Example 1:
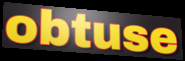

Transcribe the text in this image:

obtuse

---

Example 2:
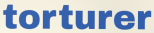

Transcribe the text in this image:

torturer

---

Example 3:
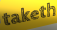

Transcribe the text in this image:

taketh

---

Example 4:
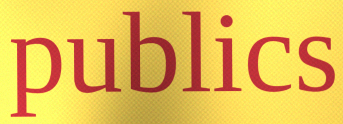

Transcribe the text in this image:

publics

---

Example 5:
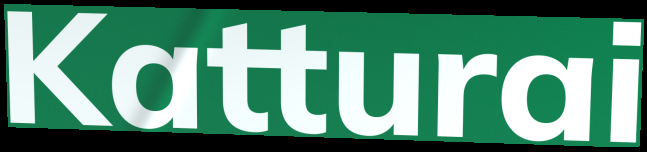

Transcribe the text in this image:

Katturai